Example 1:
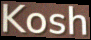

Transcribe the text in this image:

Kosh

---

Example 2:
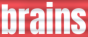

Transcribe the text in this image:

brains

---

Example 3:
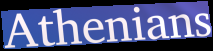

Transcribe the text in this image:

Athenians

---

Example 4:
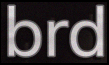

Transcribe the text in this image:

brd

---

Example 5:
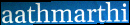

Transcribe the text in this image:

aathmarthi